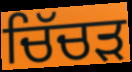
ਚਿੱਚੜ